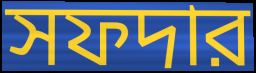
সফদার